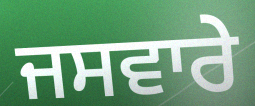
ਜਸਵਾਰੇ